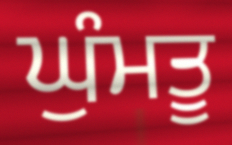
ਘੁੰਮਤੂ